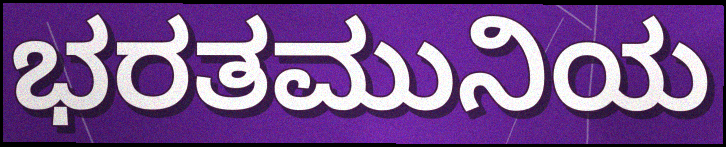
ಭರತಮುನಿಯ